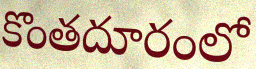
కొంతదూరంలో